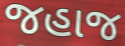
જહાજ